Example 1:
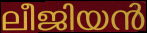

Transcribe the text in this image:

ലീജിയൻ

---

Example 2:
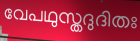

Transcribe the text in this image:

വേപഥുസ്തദുദിതഃ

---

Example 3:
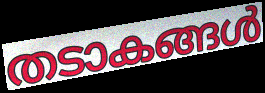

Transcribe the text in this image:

തടാകങ്ങൾ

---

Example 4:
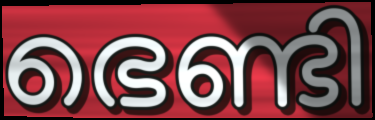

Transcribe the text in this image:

ഭെണ്ടി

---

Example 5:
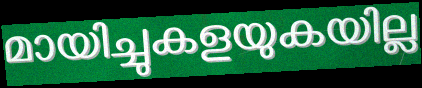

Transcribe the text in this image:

മായിച്ചുകളയുകയില്ല